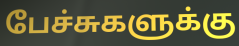
பேச்சுகளுக்கு